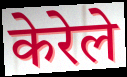
केरेले